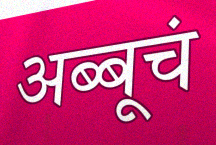
अब्बूचं